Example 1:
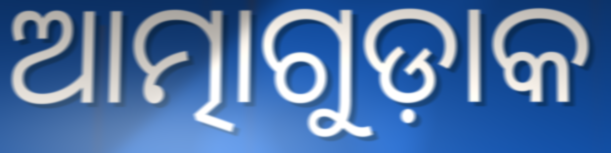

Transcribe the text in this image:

ଆତ୍ମାଗୁଡ଼ାକ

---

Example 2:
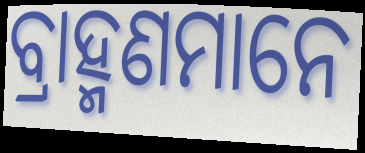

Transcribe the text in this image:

ବ୍ରାହ୍ମଣମାନେ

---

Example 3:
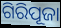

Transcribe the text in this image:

ଗିରିପୂଜା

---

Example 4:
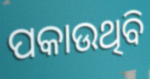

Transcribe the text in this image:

ପକାଉଥିବି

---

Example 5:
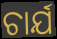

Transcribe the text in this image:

ଚାର୍ଯ